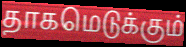
தாகமெடுக்கும்